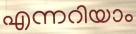
എന്നറിയാം